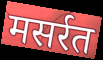
मसर्रत